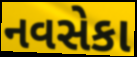
નવસેકા